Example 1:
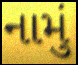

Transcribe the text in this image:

નામું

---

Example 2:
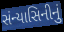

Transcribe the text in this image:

સંન્યાસિનીનું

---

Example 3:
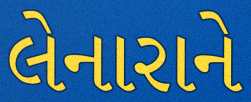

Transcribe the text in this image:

લેનારાને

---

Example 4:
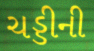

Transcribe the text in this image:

ચડ્ડીની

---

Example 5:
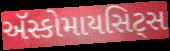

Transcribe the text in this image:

ઍસ્કોમાયસિટ્સ